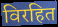
विरहित